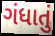
ગંધાતું